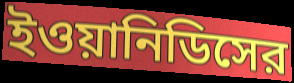
ইওয়ানিডিসের